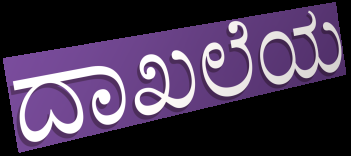
ದಾಖಲೆಯ